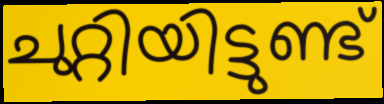
ചുറ്റിയിട്ടുണ്ട്